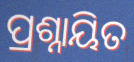
ପ୍ରଶ୍ନାୟିତ